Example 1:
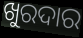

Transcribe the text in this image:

ଖୁରଦାର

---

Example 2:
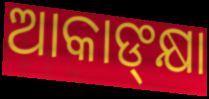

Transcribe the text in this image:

ଆକାଙ୍କ୍ଷା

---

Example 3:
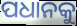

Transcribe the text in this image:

ପଧାନକୁ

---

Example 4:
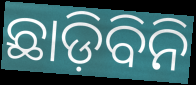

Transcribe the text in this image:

ଛାଡ଼ିବିନି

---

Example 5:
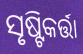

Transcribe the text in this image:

ସୃଷ୍ଟିକର୍ତ୍ତା